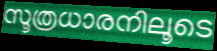
സൂത്രധാരനിലൂടെ